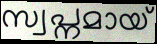
സ്വപ്നമായ്